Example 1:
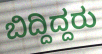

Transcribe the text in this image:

ಬಿದ್ದಿದ್ದರು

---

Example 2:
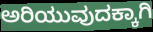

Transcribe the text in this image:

ಅರಿಯುವುದಕ್ಕಾಗಿ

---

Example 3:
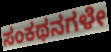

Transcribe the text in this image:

ಸಂಕಥನಗಳೇ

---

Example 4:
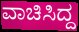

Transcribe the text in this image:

ವಾಚಿಸಿದ್ದ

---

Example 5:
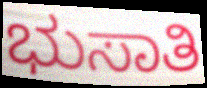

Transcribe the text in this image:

ಭುಸಾತಿ